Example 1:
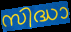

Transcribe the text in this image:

സിദ്ധാ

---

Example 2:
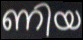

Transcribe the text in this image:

ണിയ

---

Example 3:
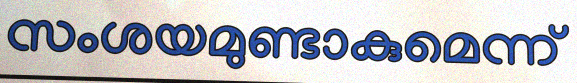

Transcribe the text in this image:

സംശയമുണ്ടാകുമെന്ന്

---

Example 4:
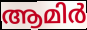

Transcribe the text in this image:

ആമിർ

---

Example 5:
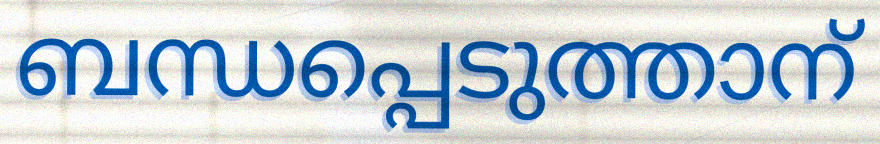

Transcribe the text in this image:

ബന്ധപ്പെടുത്താന്